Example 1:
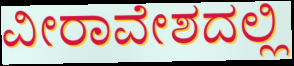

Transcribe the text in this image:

ವೀರಾವೇಶದಲ್ಲಿ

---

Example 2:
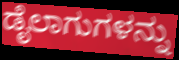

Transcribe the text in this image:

ಡೈಲಾಗುಗಳನ್ನು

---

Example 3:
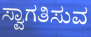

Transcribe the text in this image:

ಸ್ವಾಗತಿಸುವ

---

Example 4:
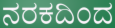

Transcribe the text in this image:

ನರಕದಿಂದ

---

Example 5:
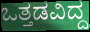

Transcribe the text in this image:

ಒತ್ತಡವಿದ್ದ